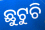
ଛୁଟୁଚି